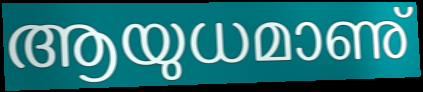
ആയുധമാണു്